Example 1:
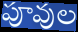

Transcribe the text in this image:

పూవుల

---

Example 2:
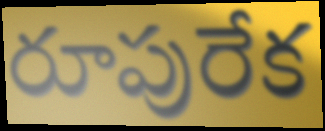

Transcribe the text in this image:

రూపురేక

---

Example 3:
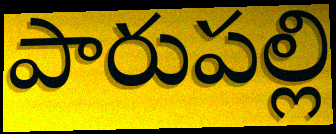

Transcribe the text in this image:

పారుపల్లి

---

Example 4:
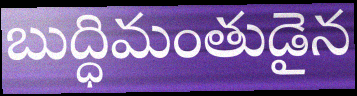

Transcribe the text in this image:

బుద్ధిమంతుడైన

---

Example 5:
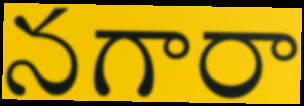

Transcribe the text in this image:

నగారా